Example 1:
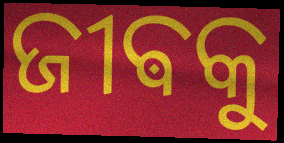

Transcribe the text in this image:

ଜୀଵକୁ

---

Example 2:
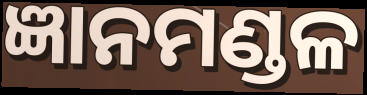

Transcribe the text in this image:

ଜ୍ଞାନମଣ୍ଡଳ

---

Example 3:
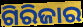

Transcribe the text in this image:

ଗିରିଜାର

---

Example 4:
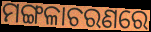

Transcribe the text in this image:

ମଙ୍ଗଳାଚରଣରେ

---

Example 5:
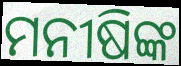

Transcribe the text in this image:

ମନୀଷିଙ୍କ